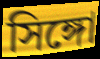
সিঙ্গো